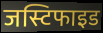
जस्टिफाइड